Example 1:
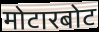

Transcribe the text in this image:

मोटारबोट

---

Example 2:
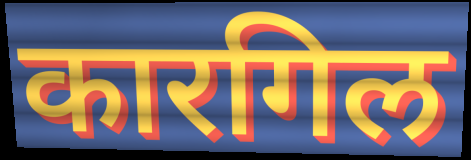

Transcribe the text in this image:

कारगिल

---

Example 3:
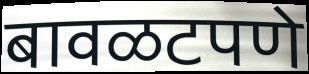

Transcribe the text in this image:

बावळटपणे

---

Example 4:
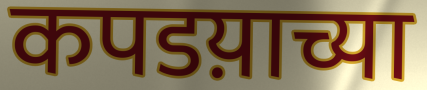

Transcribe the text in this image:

कपडय़ाच्या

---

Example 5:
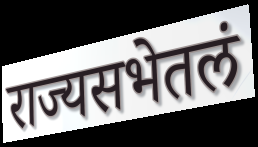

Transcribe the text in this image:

राज्यसभेतलं